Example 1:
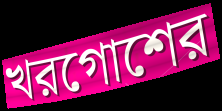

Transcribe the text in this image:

খরগোশের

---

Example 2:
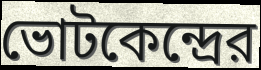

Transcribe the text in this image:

ভোটকেন্দ্রের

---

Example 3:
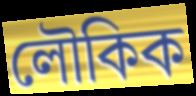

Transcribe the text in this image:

লৌকিক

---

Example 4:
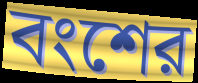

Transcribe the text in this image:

বংশের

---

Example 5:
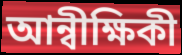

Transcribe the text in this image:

আন্বীক্ষিকী